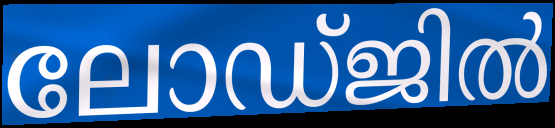
ലോഡ്ജിൽ